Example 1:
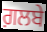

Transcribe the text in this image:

ਗ਼ਲਬੇ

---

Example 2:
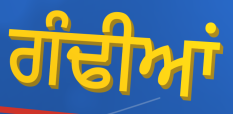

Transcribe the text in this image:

ਗੰਢੀਆਂ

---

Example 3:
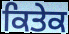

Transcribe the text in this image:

ਕਿਤੇਕ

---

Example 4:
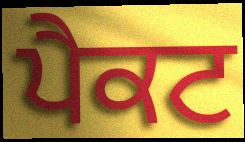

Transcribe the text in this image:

ਪੈਕਟ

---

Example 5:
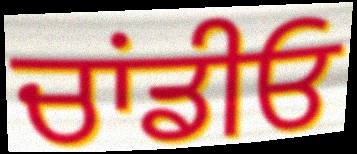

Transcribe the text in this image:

ਚਾਂਡੀਓ